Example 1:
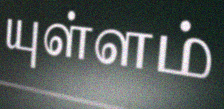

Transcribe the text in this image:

யுள்ளம்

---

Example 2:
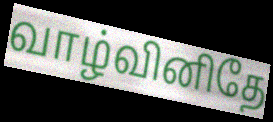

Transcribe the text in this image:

வாழ்வினிதே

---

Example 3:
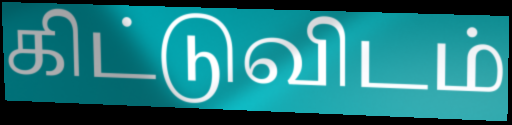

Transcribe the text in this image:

கிட்டுவிடம்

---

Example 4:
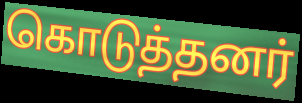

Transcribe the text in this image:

கொடுத்தனர்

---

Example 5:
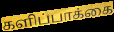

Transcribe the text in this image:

களிப்பாக்கை